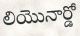
లియొనార్డో